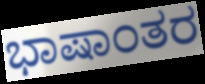
ಭಾಷಾಂತರ